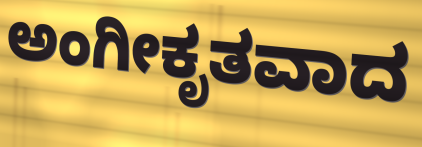
ಅಂಗೀಕೃತವಾದ